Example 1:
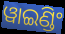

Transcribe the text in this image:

ୱାଇଣ୍ଡିଂ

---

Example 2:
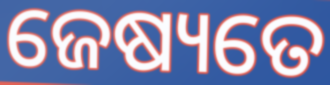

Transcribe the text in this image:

ଜେଷ୍ୟତେ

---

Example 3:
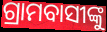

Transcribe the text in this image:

ଗ୍ରାମବାସୀଙ୍କୁ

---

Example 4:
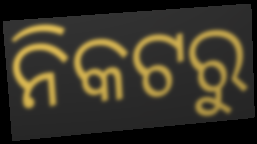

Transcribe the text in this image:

ନିକଟରୁ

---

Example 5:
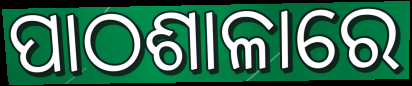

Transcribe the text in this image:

ପାଠଶାଳାରେ